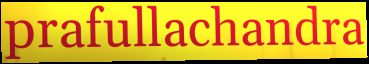
prafullachandra